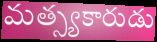
మత్స్యకారుడు